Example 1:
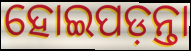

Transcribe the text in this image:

ହୋଇପଡ଼ନ୍ତା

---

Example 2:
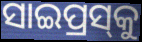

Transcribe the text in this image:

ସାଇପ୍ରସ୍‌କୁ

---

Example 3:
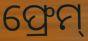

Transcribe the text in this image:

ଫ୍ରେମ୍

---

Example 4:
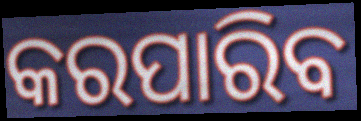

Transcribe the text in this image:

କରପାରିବ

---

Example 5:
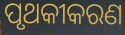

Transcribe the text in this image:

ପୃଥକୀକରଣ